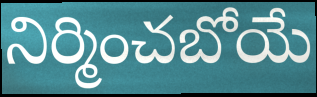
నిర్మించబోయే